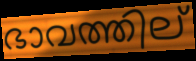
ഭാവത്തില്